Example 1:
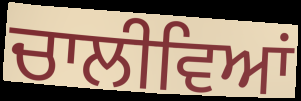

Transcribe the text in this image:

ਚਾਲੀਵਿਆਂ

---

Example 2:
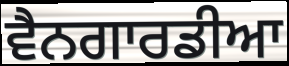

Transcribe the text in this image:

ਵੈਨਗਾਰਡੀਆ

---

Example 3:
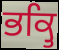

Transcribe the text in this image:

ਭਕ੍ਤਿ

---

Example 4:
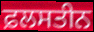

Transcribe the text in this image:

ਫ਼ਲਸਤੀਨ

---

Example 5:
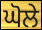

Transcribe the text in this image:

ਘੋਲੇ